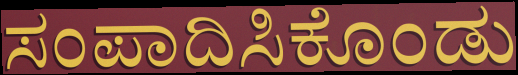
ಸಂಪಾದಿಸಿಕೊಂಡು